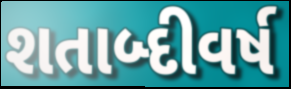
શતાબ્દીવર્ષ